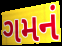
ગમનં